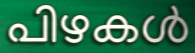
പിഴകൾ